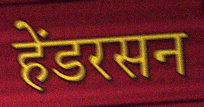
हेंडरसन